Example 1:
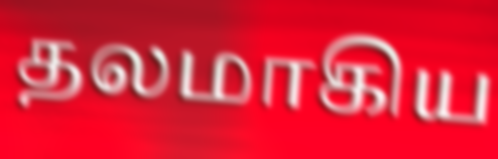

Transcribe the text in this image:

தலமாகிய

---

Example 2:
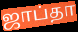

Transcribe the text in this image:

ஜாப்தா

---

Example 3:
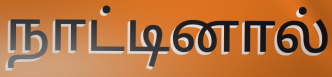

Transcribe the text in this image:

நாட்டினால்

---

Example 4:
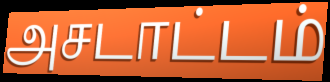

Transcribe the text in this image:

அசடாட்டம்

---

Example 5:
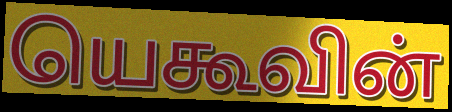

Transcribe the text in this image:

யெகூவின்